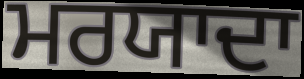
ਮਰਯਾਦਾ